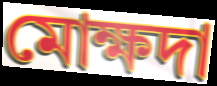
মোক্ষদা